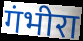
गंभीरा